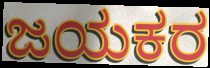
ಜಯಕರ